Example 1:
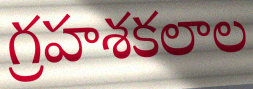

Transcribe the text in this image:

గ్రహశకలాల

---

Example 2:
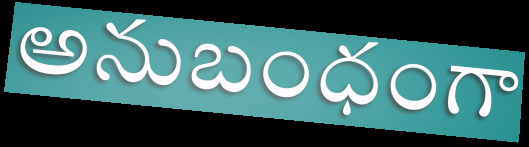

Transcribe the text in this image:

అనుబంధంగా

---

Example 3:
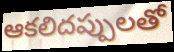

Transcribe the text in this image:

ఆకలిదప్పులతో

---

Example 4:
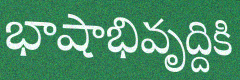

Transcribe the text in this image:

భాషాభివృద్దికి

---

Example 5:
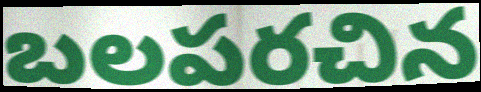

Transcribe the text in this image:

బలపరచిన